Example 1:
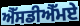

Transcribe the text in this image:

ਐੱਸਡੀਐੱਮਏ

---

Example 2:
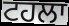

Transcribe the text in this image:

ਟਹਲਾ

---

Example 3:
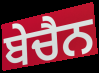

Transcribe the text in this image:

ਬੇਚੈਨ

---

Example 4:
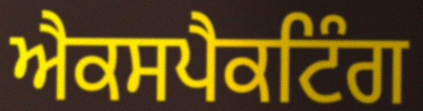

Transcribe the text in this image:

ਐਕਸਪੈਕਟਿੰਗ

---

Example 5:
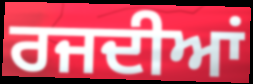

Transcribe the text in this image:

ਰਜਦੀਆਂ